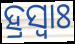
ହ୍ରସ୍ଵାଃ